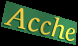
Acche